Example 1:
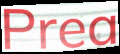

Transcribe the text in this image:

Prea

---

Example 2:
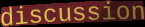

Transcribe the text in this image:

discussion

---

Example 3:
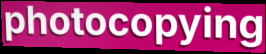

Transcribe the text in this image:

photocopying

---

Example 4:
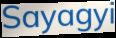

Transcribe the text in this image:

Sayagyi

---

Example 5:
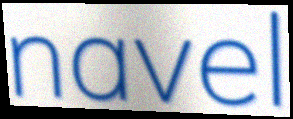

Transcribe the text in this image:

navel